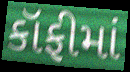
કૉફીમાં